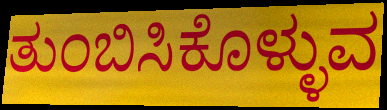
ತುಂಬಿಸಿಕೊಳ್ಳುವ